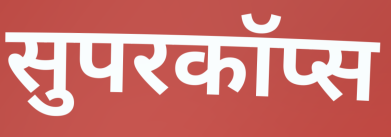
सुपरकॉप्स